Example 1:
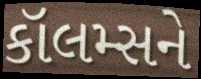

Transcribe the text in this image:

કૉલમ્સને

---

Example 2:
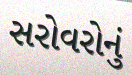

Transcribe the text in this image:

સરોવરોનું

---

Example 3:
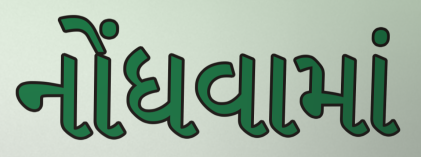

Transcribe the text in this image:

નોંધવામાં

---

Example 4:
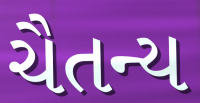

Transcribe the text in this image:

ચૈતન્ય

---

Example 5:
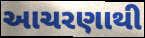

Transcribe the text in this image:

આચરણાથી